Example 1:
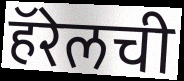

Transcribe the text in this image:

हॅरेलची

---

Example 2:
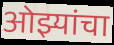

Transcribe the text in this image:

ओझ्यांचा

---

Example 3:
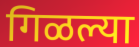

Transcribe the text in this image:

गिळल्या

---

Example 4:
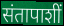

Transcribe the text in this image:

संतापाशीं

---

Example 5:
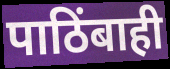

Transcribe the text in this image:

पाठिंबाही